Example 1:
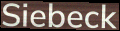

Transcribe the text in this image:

Siebeck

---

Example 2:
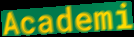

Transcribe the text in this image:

Academi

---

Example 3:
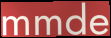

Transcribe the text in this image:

mmde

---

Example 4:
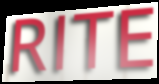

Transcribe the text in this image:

RITE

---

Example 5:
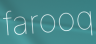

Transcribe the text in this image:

farooq